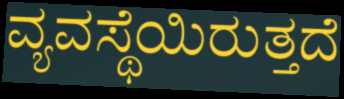
ವ್ಯವಸ್ಥೆಯಿರುತ್ತದೆ